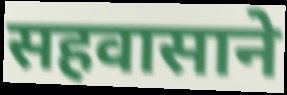
सहवासाने